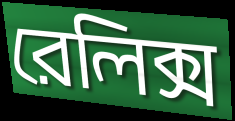
রেলিক্স